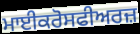
ਮਾਈਕਰੋਸਫੀਅਰਜ਼